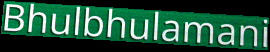
Bhulbhulamani